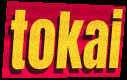
tokai